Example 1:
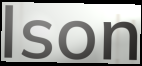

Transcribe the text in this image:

Ison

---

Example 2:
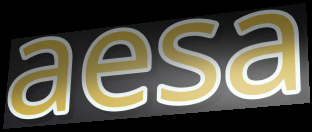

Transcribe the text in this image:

aesa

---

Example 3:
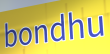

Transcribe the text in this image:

bondhu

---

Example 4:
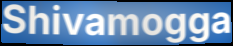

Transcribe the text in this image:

Shivamogga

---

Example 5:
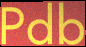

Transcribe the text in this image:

Pdb